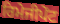
ਰਿਮੇਜੀਪੇਂਟ